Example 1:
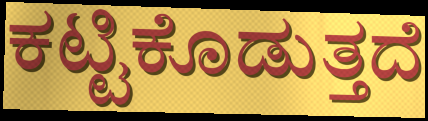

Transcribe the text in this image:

ಕಟ್ಟಿಕೊಡುತ್ತದೆ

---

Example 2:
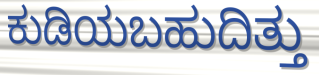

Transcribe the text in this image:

ಕುಡಿಯಬಹುದಿತ್ತು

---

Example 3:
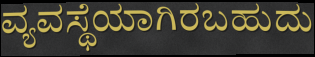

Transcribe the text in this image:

ವ್ಯವಸ್ಥೆಯಾಗಿರಬಹುದು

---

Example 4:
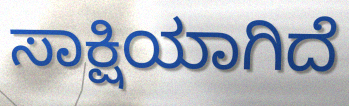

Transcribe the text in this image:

ಸಾಕ್ಷಿಯಾಗಿದೆ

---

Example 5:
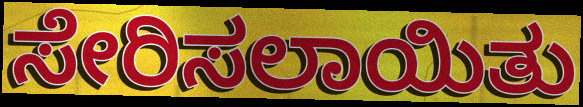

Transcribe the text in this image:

ಸೇರಿಸಲಾಯಿತು